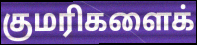
குமரிகளைக்